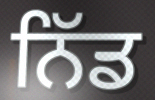
ਨਿੱਡ